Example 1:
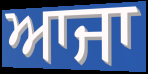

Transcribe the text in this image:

ਆਜਾ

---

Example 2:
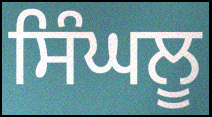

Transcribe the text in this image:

ਸਿੰਘਲੂ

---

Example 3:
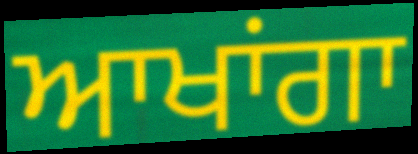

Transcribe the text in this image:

ਆਖਾਂਗਾ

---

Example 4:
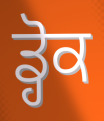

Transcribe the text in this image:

ਡ੍ਹੋਕ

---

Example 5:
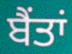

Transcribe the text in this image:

ਬੈਂਤਾਂ